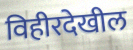
विहीरदेखील